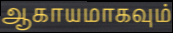
ஆகாயமாகவும்